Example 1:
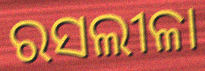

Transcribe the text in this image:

ରସଲୀଳା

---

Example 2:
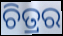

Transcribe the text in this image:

ଚିତ୍ରର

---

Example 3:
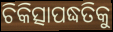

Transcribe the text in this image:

ଚିକିତ୍ସାପଦ୍ଧତିକୁ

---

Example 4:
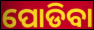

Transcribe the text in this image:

ପୋଡିବା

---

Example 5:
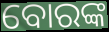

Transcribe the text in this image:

ବୋରଙ୍କ